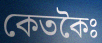
কেতকৈঃ